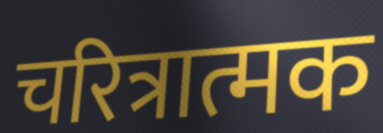
चरित्रात्मक